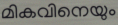
മികവിനെയും